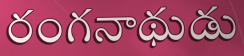
రంగనాథుడు